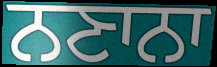
ਨਣਾਨਾ